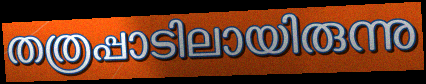
തത്രപ്പാടിലായിരുന്നു